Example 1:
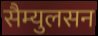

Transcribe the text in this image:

सैम्युलसन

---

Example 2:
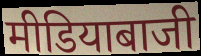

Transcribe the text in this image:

मीडियाबाजी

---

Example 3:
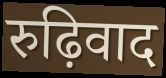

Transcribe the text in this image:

रुढ़िवाद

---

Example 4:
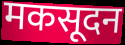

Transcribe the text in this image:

मकसूदन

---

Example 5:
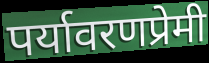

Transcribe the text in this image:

पर्यावरणप्रेमी